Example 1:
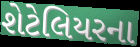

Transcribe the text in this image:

શેટેલિયરના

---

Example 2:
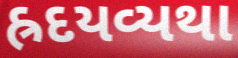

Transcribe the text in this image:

હ્રદયવ્યથા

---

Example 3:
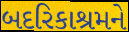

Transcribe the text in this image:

બદરિકાશ્રમને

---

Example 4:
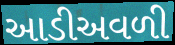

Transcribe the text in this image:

આડીઅવળી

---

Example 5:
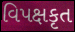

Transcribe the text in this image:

વિપક્ષકૃત